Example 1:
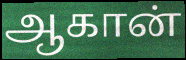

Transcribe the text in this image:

ஆகான்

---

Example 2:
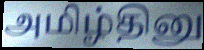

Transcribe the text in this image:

அமிழ்தினு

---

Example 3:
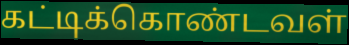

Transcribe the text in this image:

கட்டிக்கொண்டவள்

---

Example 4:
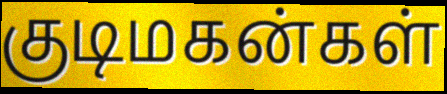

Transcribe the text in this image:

குடிமகன்கள்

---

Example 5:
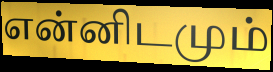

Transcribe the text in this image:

என்னிடமும்